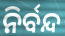
ନିର୍ବନ୍ଦ